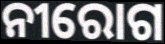
ନୀରୋଗ